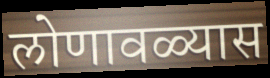
लोणावळ्यास